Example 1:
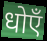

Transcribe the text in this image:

धोएँ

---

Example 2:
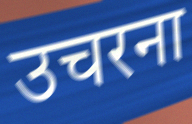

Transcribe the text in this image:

उचरना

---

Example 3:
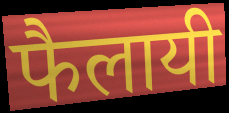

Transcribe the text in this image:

फैलायी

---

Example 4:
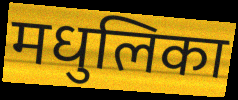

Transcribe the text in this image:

मधुलिका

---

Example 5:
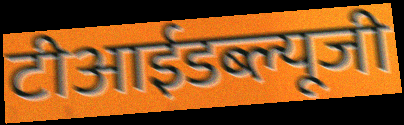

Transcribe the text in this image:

टीआईडब्ल्यूजी